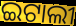
ଇଟାଲୀ